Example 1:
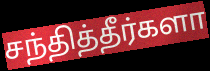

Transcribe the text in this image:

சந்தித்தீர்களா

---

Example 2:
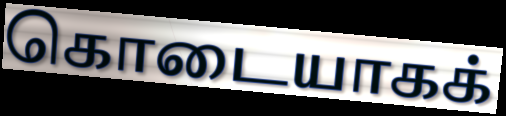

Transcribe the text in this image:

கொடையாகக்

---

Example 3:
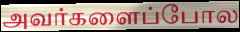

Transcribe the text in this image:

அவர்களைப்போல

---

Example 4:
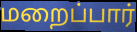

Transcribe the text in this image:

மறைப்பார்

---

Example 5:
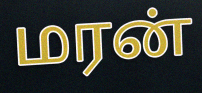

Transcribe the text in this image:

மரன்